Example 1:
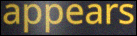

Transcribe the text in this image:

appears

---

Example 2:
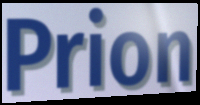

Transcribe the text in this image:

Prion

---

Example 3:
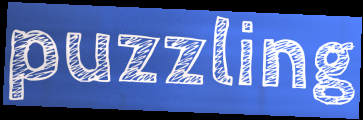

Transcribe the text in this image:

puzzling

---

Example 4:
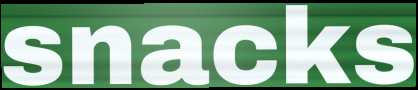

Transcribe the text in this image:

snacks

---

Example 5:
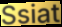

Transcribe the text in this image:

Ssiat